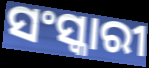
ସଂସ୍କାରୀ